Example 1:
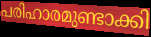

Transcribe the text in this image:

പരിഹാരമുണ്ടാക്കി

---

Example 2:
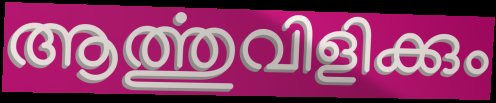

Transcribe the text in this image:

ആൎത്തുവിളിക്കും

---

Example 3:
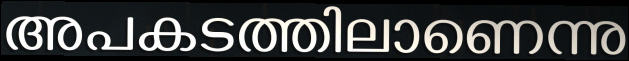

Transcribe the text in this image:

അപകടത്തിലാണെന്നു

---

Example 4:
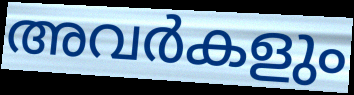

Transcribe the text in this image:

അവർകളും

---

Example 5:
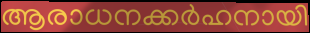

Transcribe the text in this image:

ആരാധനക്കർഹനായി